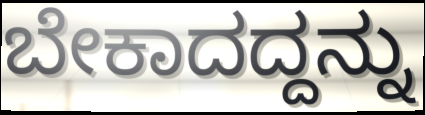
ಬೇಕಾದದ್ದನ್ನು